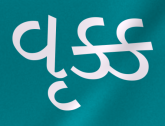
વૃક્ક